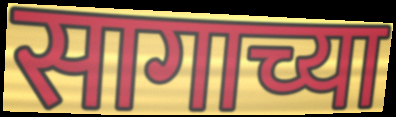
सागाच्या